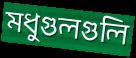
মধুগুলগুলি